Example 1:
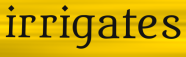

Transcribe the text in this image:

irrigates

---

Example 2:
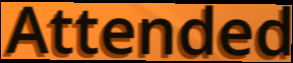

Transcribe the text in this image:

Attended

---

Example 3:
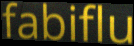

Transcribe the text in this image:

fabiflu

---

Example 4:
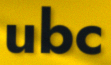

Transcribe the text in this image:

ubc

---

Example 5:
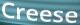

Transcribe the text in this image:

Creese